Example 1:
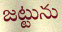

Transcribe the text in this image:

జట్టును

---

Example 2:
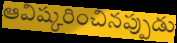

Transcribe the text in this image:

ఆవిష్కరించినప్పుడు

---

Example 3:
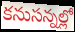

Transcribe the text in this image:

కనుసన్నల్లో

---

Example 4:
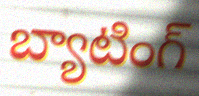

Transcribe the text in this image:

బ్యాటింగ్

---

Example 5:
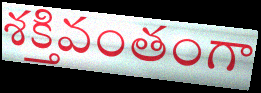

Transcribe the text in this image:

శక్తివంతంగా